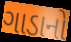
ગાડાનો